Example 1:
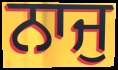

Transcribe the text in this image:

ਨਾਜੁ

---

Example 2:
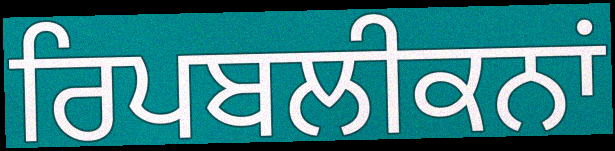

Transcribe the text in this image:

ਰਿਪਬਲੀਕਨਾਂ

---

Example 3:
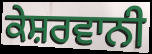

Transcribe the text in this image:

ਕੇਸ਼ਰਵਾਨੀ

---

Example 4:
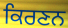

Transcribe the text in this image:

ਕਿਰਣਨ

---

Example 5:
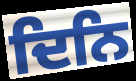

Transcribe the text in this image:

ਦਿਨਿ